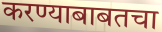
करण्याबाबतचा